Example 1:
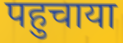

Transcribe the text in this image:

पहुचाया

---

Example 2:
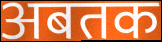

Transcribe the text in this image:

अबतक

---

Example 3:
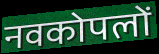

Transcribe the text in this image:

नवकोपलों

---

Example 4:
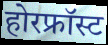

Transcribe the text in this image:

होरफ्रॉस्ट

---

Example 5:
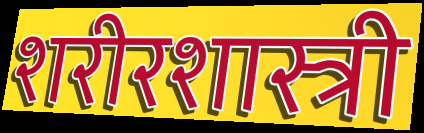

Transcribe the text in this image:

शरीरशास्त्री